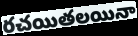
రచయితలయినా